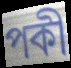
পকী